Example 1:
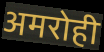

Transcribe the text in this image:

अमरोही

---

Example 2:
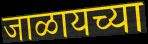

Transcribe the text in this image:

जाळायच्या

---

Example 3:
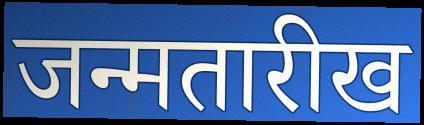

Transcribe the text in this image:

जन्मतारीख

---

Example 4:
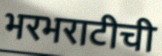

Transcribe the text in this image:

भरभराटीची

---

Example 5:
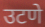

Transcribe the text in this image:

उटणे